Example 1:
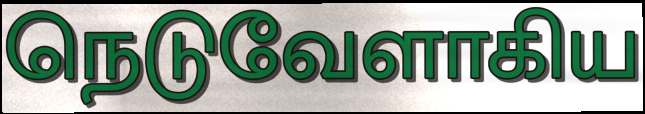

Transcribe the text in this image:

நெடுவேளாகிய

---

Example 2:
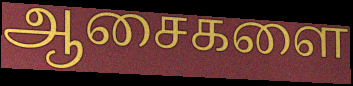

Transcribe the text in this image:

ஆசைகளை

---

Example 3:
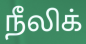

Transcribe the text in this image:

நீலிக்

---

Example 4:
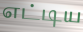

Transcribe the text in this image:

எட்டிய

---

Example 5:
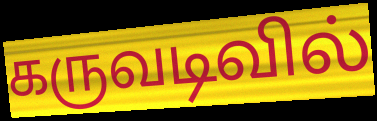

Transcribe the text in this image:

கருவடிவில்